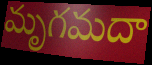
మృగమదా